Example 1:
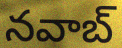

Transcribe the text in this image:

నవాబ్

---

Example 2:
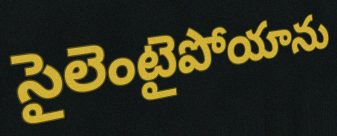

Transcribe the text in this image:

సైలెంటైపోయాను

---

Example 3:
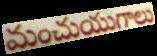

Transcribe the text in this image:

మంచుయుగాలు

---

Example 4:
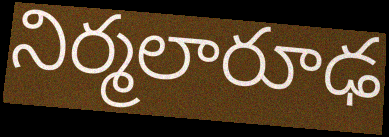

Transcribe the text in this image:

నిర్మలారూఢ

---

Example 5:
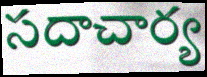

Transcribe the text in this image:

సదాచార్య